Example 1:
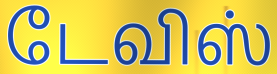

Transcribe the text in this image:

டேவிஸ்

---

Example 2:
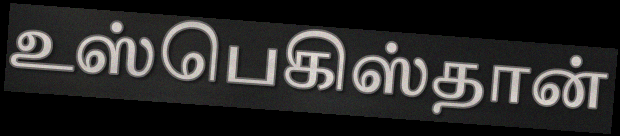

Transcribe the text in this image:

உஸ்பெகிஸ்தான்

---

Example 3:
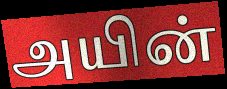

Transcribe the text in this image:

அயின்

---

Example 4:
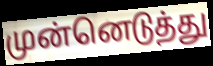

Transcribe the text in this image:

முன்னெடுத்து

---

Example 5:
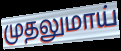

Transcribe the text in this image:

முதலுமாய்